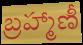
బ్రహ్మాణీ